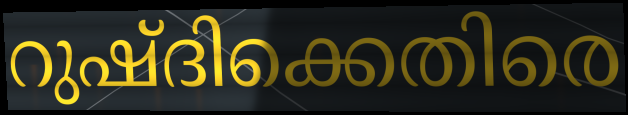
റുഷ്ദിക്കെതിരെ